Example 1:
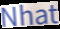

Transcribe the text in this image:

Nhat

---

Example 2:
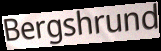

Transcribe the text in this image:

Bergshrund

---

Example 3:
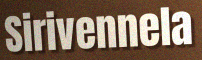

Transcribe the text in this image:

Sirivennela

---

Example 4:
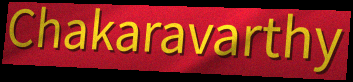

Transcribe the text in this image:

Chakaravarthy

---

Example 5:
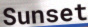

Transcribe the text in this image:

Sunset